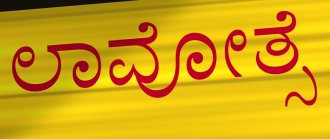
ಲಾವೋತ್ಸೆ